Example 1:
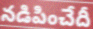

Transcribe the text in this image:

నడిపించేదీ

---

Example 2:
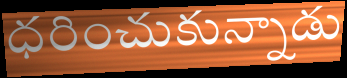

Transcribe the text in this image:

ధరించుకున్నాడు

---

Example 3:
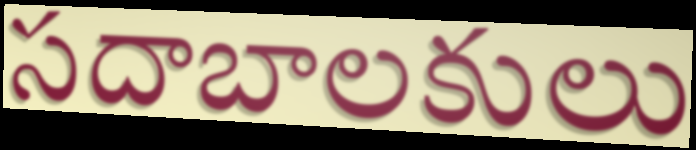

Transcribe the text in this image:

సదాబాలకులు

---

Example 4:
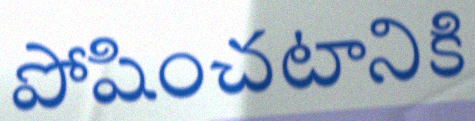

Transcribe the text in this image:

పోషించటానికి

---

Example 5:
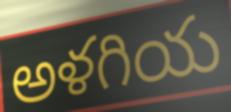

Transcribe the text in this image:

అళగియ